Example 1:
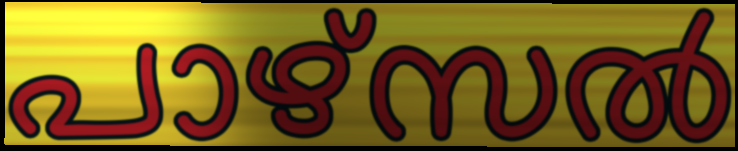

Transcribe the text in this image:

പാഴ്സൽ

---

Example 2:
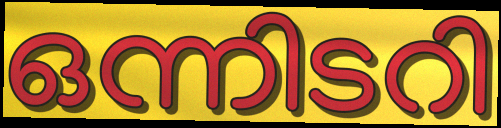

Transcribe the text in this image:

ഒന്നിടറി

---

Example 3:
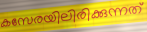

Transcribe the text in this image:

കസേരയിലിരിക്കുന്നത്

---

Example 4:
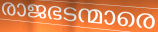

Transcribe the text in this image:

രാജഭടന്മാരെ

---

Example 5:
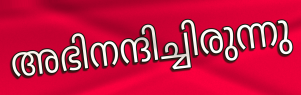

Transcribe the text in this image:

അഭിനന്ദിച്ചിരുന്നു